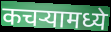
कचऱ्यामध्ये